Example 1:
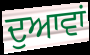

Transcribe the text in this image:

ਦੁਆਵਾਂ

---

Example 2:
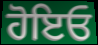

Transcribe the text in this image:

ਹੋਇਓ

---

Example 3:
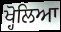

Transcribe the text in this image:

ਖ੍ਹੋਲਿਆ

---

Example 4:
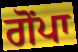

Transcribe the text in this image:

ਗੋਂਪਾ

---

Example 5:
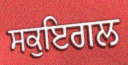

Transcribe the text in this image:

ਸਕੁਇਗਲ